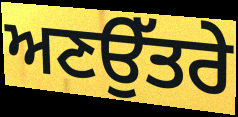
ਅਣਉੱਤਰੇ